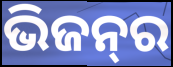
ଭିଜନ୍‌ର